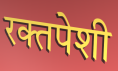
रक्तपेशी